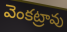
వెంకట్రావు